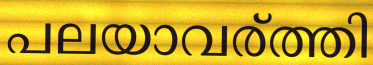
പലയാവര്ത്തി